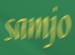
samjo